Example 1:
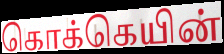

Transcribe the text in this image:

கொக்கெயின்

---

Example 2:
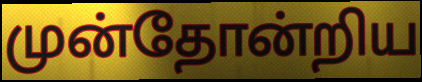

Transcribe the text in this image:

முன்தோன்றிய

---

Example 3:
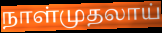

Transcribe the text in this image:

நாள்முதலாய்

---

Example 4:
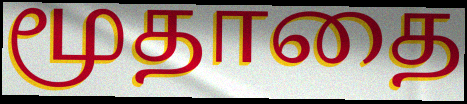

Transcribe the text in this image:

மூதாதை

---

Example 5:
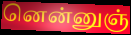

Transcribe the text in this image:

னென்னுஞ்